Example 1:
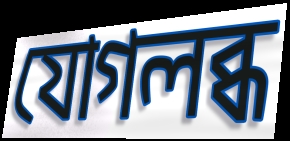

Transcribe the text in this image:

যোগলব্ধ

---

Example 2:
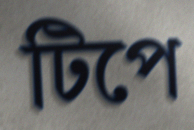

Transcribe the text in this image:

টিপে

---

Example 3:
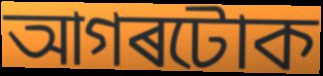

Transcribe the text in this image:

আগৰটোক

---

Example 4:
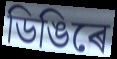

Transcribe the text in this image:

ডিঙিৰে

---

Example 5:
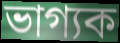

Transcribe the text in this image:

ভাগ্যক